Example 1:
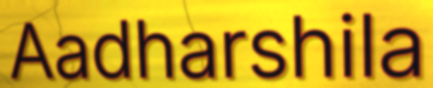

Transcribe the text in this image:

Aadharshila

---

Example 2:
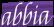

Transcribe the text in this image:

abbia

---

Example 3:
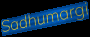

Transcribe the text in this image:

Sadhumargi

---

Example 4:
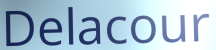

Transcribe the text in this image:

Delacour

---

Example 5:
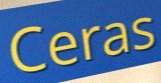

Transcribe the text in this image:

Ceras